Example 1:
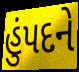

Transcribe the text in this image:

હુંપદને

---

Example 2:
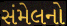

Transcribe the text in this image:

સંમેલનો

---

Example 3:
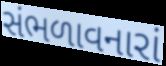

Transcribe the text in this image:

સંભળાવનારાં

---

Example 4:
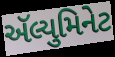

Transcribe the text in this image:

ઍલ્યુમિનેટ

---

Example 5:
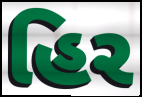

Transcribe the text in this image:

હિર